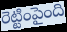
రెట్టింపైంది